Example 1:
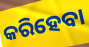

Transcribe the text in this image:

କରିହେବା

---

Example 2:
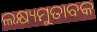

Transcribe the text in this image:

ଲକ୍ଷ୍ୟମୁତାବକ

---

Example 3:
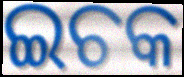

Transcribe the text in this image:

ଇଚକ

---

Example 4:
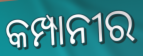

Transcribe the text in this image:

କମ୍ପାନୀର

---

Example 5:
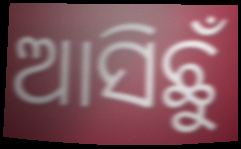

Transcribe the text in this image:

ଆସିଛୁଁ